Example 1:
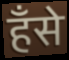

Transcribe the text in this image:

हँसे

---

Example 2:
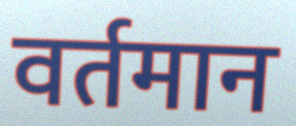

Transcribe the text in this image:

वर्तमान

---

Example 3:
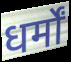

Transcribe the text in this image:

धर्मों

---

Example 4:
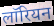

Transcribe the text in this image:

लॉरियन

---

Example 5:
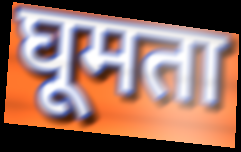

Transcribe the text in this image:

घूमता